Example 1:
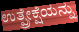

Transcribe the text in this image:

ಉತ್ಪ್ರೇಕ್ಷೆಯನ್ನು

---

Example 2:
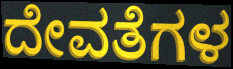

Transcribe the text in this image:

ದೇವತೆಗಳ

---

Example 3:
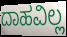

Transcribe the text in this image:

ದಾಹವಿಲ್ಲ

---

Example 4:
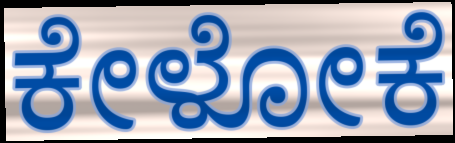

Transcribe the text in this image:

ಕೇಳೋಕೆ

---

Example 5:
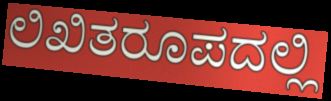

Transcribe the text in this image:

ಲಿಖಿತರೂಪದಲ್ಲಿ